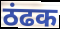
ठंढक